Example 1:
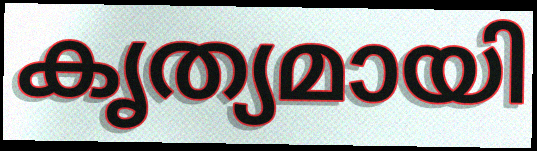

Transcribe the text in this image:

കൃത്യമായി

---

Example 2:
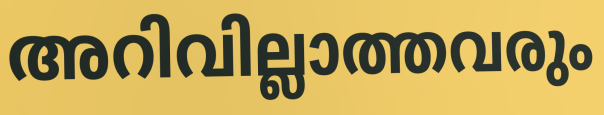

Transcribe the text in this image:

അറിവില്ലാത്തവരും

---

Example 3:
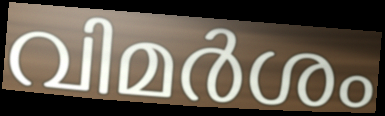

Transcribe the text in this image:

വിമർശം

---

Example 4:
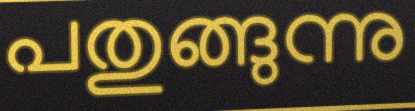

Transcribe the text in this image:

പതുങ്ങുന്നു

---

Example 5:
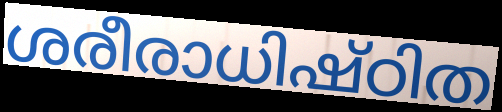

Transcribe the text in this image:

ശരീരാധിഷ്ഠിത